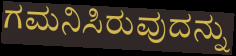
ಗಮನಿಸಿರುವುದನ್ನು